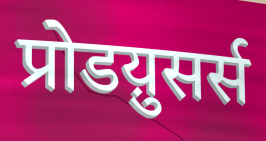
प्रोडय़ुसर्स